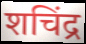
शचिंद्र